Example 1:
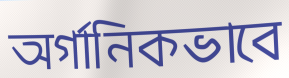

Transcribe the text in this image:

অর্গানিকভাবে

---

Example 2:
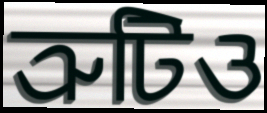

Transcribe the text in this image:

ত্রুটিও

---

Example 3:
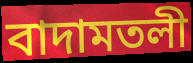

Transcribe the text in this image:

বাদামতলী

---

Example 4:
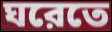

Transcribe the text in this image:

ঘরেতে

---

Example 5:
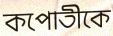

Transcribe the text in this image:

কপোতীকে